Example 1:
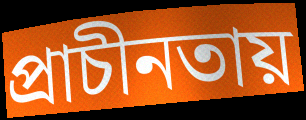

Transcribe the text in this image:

প্রাচীনতায়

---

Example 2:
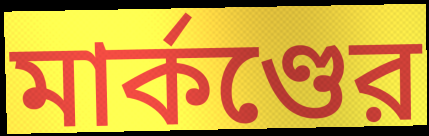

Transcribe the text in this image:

মার্কণ্ডের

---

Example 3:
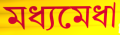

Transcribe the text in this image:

মধ্যমেধা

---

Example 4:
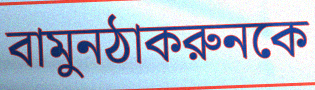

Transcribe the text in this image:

বামুনঠাকরুনকে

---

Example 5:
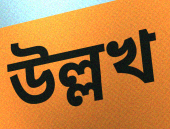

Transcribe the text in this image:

উল্লখ